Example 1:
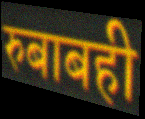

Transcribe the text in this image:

रुबाबही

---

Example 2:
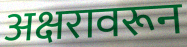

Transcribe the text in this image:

अक्षरावरून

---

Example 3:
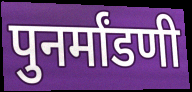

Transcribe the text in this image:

पुनर्मांडणी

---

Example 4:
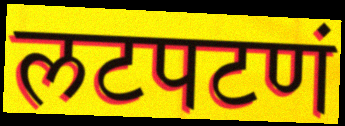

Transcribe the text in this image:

लटपटणं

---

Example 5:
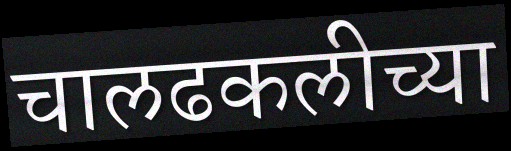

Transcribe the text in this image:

चालढकलीच्या